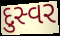
દુસ્વર